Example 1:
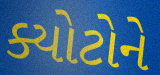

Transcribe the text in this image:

ક્યોટોને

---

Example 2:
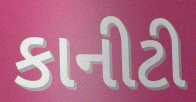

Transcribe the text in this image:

કાનીટી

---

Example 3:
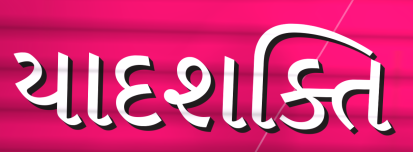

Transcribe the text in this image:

યાદશક્તિ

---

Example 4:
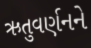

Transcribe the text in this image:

ઋતુવર્ણનને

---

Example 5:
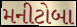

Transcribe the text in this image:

મનીટોબા